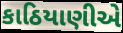
કાઠિયાણીએ